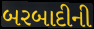
બરબાદીની